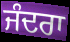
ਜੰਦਰਾ